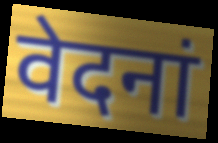
वेदनां